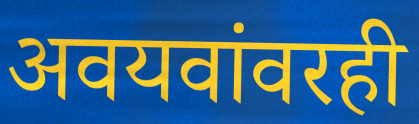
अवयवांवरही